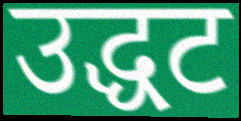
उद्धट